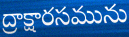
ద్రాక్షారసమును